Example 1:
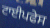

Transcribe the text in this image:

ਟਾਈਪਫੇਸ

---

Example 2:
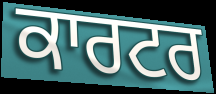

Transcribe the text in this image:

ਕਾਰਟਰ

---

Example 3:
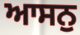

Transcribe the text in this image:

ਆਸਨੁ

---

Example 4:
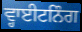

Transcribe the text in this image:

ਵ੍ਹਾਈਟਨਿੰਗ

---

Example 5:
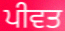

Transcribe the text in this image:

ਪੀਵਤ